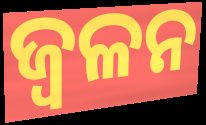
ଜ୍ଵଳନ